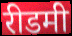
रीडमी